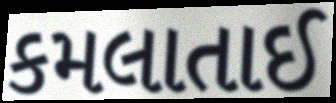
કમલાતાઈ